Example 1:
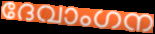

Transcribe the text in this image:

ദേവാംഗന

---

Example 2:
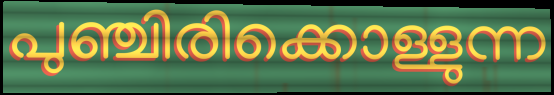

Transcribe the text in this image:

പുഞ്ചിരിക്കൊള്ളുന്ന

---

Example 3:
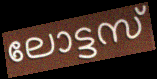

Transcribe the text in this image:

ലോട്ടസ്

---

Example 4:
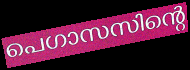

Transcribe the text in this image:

പെഗാസസിന്റെ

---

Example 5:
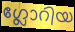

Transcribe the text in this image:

ഗ്ലോറിയ